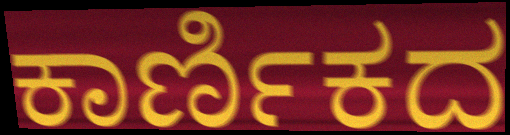
ಕಾರ್ಣಿಕದ